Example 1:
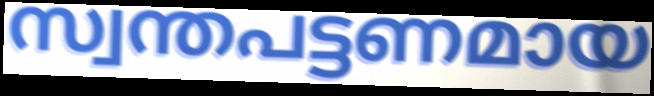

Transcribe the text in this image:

സ്വന്തപട്ടണമായ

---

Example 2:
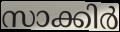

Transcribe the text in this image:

സാക്കിർ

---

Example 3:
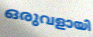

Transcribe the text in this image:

ഒരുവളായി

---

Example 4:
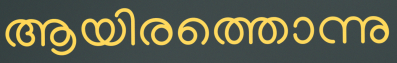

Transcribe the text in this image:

ആയിരത്തൊന്നു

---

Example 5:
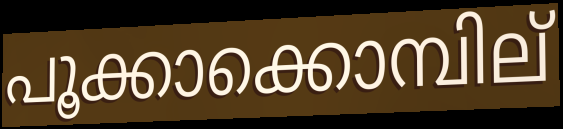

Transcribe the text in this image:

പൂക്കാക്കൊമ്പില്